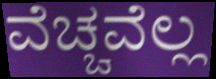
ವೆಚ್ಚವೆಲ್ಲ